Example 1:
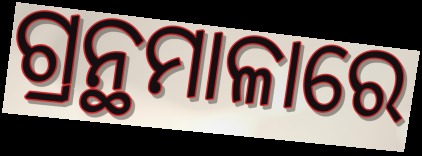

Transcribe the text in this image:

ଗ୍ରନ୍ଥମାଳାରେ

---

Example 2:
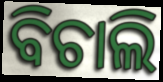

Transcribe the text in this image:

ବିଚାଲି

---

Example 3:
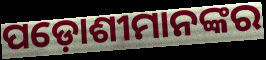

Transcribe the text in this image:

ପଡ଼ୋଶୀମାନଙ୍କର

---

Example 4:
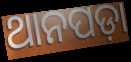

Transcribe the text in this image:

ଥାନପଡ଼ା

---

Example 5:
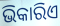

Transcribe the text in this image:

ଭିକାରିଏ